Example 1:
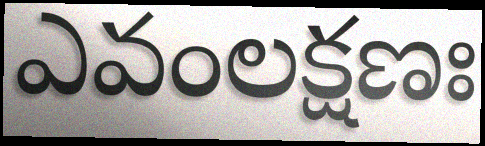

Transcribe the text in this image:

ఎవంలక్షణః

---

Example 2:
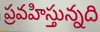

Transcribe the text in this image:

ప్రవహిస్తున్నది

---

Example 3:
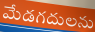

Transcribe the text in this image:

మేడగదులను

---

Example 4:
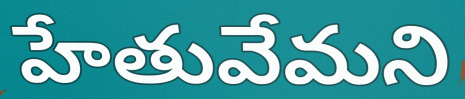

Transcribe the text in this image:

హేతువేమని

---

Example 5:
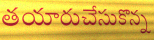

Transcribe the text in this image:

తయారుచేసుకొన్న